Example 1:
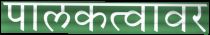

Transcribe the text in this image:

पालकत्वावर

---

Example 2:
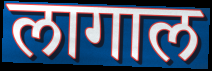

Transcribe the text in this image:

लागाल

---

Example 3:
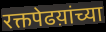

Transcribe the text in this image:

रक्तपेढय़ांच्या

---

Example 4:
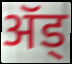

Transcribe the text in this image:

ॲड्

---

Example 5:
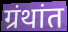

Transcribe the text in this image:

ग्रंथांत